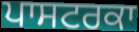
ਪਾਸਟਰਕਾ